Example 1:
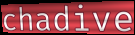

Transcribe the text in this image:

chadive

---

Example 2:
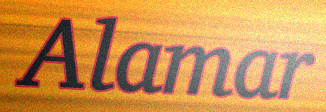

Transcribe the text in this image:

Alamar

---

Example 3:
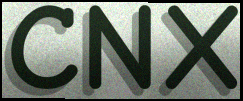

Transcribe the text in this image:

CNX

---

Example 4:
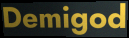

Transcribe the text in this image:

Demigod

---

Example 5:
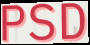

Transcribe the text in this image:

PSD